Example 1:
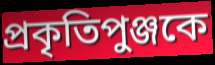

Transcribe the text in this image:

প্রকৃতিপুঞ্জকে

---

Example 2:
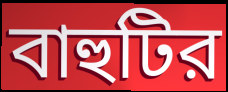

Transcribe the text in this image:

বাহুটির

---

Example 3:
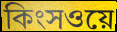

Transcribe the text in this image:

কিংসওয়ে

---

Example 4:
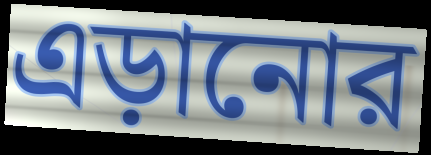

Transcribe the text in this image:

এড়ানোর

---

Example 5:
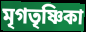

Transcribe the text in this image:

মৃগতৃষ্ণিকা